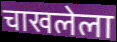
चाखलेला